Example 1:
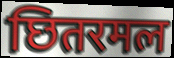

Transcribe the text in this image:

छितरमल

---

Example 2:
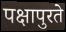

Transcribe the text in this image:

पक्षापुरते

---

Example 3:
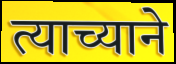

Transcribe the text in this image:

त्याच्याने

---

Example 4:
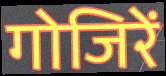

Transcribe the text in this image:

गोजिरें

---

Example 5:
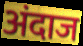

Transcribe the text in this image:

अंदाज